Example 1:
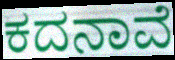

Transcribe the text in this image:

ಕದನಾವೆ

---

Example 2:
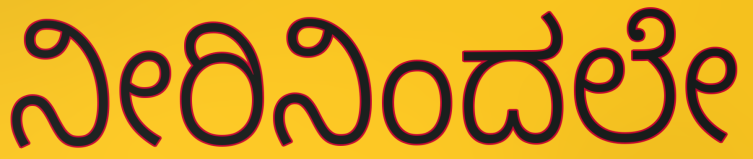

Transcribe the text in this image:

ನೀರಿನಿಂದಲೇ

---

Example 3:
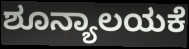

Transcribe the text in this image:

ಶೂನ್ಯಾಲಯಕೆ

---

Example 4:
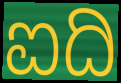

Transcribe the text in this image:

ಐದಿ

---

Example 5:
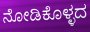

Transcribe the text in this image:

ನೋಡಿಕೊಳ್ಳದ